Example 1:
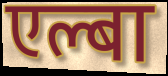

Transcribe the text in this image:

एल्बा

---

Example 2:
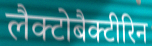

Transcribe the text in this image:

लैक्टोबैक्टीरिन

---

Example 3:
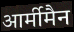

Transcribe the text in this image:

आर्मीमैन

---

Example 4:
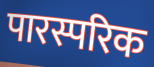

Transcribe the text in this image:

पारस्परिक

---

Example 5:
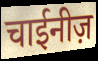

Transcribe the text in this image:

चाईनीज़